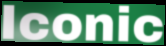
Iconic